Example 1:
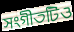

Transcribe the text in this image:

সংগীতটিও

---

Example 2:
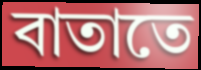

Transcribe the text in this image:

বাতাতে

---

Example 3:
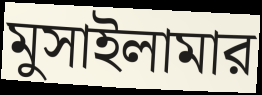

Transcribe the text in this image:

মুসাইলামার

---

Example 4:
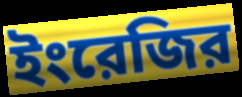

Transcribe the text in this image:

ইংরেজির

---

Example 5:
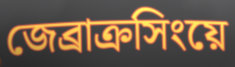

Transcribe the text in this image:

জেব্রাক্রসিংয়ে